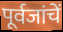
पूर्वजांचें